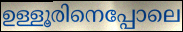
ഉള്ളൂരിനെപ്പോലെ